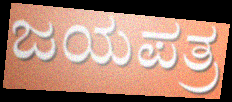
ಜಯಪತ್ರ